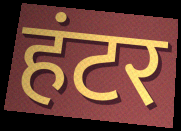
हंटर